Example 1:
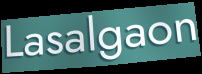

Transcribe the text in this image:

Lasalgaon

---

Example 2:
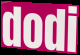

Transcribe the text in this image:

dodi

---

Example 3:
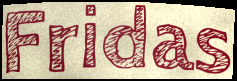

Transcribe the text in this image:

Fridas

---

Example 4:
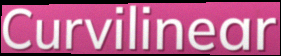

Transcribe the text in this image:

Curvilinear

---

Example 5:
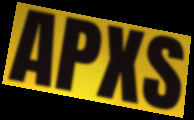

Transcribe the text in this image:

APXS